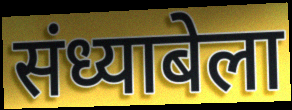
संध्याबेला